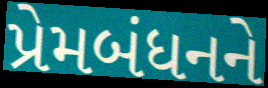
પ્રેમબંધનને